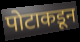
पोटाकडून